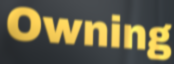
Owning